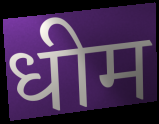
धीम